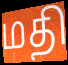
மதி